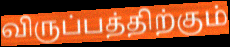
விருப்பத்திற்கும்